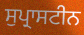
ਸੁਪ੍ਰਾਸਟੀਨ